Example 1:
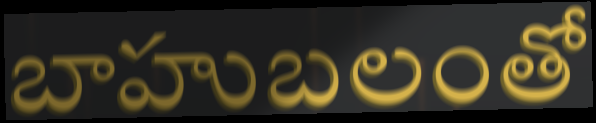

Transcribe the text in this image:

బాహుబలంతో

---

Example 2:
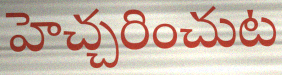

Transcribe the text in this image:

హెచ్చరించుట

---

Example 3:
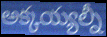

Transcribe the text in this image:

అక్కయ్యల్నీ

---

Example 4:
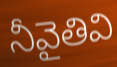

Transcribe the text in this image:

నీవైతివి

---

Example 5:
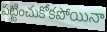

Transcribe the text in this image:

పట్టించుకోకపోయినా